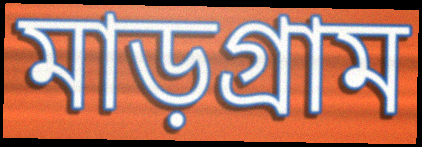
মাড়গ্রাম